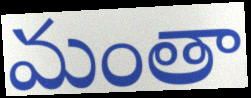
మంతా